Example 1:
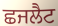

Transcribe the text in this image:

ਛਜਲੈਟ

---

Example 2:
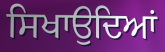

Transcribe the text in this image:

ਸਿਖਾਉਦਿਆਂ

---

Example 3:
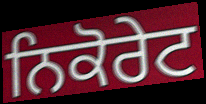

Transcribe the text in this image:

ਨਿਕੋਰੇਟ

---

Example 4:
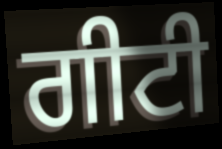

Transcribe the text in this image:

ਗੀਟੀ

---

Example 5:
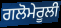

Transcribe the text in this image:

ਗਲੋਮੇਰੂਲੀ